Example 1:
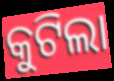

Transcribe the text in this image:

କୁଟିଲା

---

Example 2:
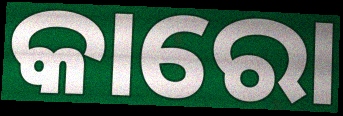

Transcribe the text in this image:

କାରୋ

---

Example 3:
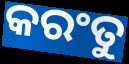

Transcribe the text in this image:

କରଂତୁ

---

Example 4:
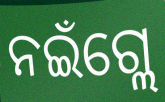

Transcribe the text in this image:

ନଇଁଗ୍ଲେ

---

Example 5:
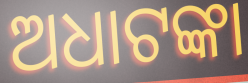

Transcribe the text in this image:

ଅଧାଟଙ୍କା